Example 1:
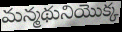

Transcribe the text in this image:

మన్మథునియొక్క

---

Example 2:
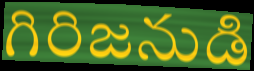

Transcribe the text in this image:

గిరిజనుడి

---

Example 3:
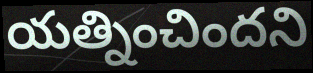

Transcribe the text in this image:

యత్నించిందని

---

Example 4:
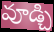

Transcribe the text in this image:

వూడ్చి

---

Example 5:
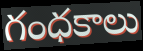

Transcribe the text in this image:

గంధకాలు